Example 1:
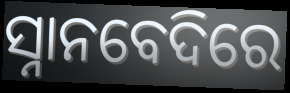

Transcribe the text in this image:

ସ୍ନାନବେଦିରେ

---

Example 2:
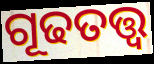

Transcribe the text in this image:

ଗୂଢତତ୍ତ୍ୱ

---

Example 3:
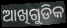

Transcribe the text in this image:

ଆଖିଗୁଡିକ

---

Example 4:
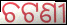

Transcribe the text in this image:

ଚଟଣୀ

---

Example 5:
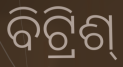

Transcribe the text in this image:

ବିଟ୍ରିଶ୍